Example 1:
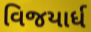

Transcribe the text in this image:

વિજયાર્ધ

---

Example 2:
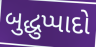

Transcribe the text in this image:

બુદ્ધુપ્પાદો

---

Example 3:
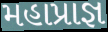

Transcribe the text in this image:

મહાપ્રાજ્ઞ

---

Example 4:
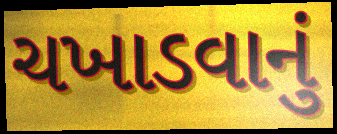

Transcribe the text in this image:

ચખાડવાનું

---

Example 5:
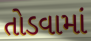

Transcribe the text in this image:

તોડવામાં